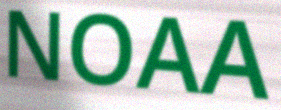
NOAA